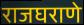
राजघराणे